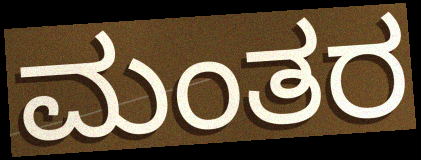
ಮಂತರ